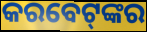
କରବେଟ୍‌ଙ୍କର